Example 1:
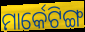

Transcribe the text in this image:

ମାର୍କେଟିଙ୍ଗ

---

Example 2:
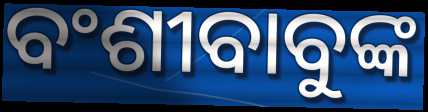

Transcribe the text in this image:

ବଂଶୀବାବୁଙ୍କ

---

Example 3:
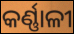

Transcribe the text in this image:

କର୍ଣ୍ଣାଳୀ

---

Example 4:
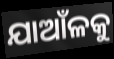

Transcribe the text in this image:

ଯାଆଁଳକୁ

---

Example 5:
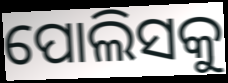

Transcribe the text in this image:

ପୋଲିସକୁ